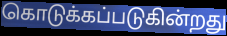
கொடுக்கப்படுகின்றது